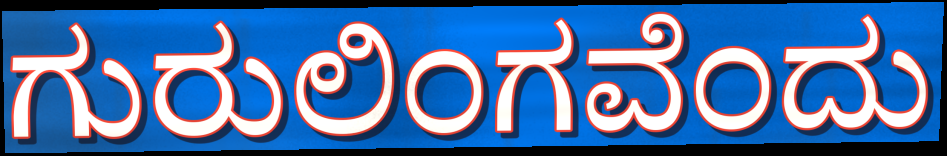
ಗುರುಲಿಂಗವೆಂದು